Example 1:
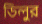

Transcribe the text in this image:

ডিলুর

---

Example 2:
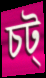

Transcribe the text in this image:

চট্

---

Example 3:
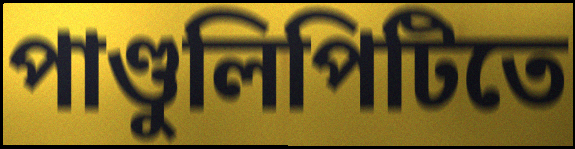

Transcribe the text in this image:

পাণ্ডুলিপিটিতে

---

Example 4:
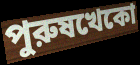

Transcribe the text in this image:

পুরুষখেকো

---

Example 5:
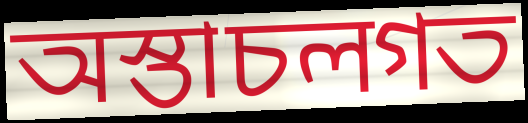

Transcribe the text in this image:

অস্তাচলগত